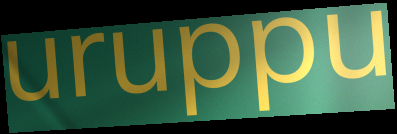
uruppu